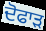
ਦੋਫਾੜ